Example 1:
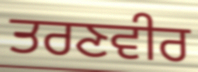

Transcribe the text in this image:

ਤਰਣਵੀਰ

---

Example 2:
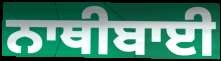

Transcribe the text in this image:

ਨਾਥੀਬਾਈ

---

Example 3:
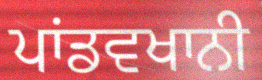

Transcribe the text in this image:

ਪਾਂਡਵਖਾਨੀ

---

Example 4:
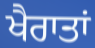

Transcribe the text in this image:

ਖੈਰਾਤਾਂ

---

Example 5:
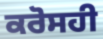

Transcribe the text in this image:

ਕਰੋਸਹੀ